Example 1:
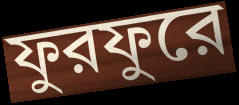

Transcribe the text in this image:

ফুরফুরে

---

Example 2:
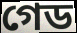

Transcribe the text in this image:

গেড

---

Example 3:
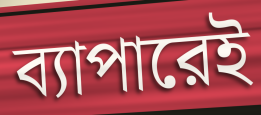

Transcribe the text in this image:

ব্যাপারেই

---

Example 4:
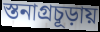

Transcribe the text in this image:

স্তনাগ্রচূড়ায়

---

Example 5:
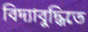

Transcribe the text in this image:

বিদ্যাবুদ্ধিতে